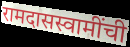
रामदासस्वामींची